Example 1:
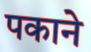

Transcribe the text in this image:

पकाने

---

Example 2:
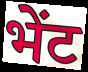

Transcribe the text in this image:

भेंट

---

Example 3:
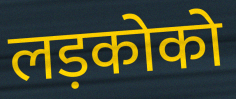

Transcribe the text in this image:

लड़कोको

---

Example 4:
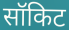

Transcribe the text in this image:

सॉकिट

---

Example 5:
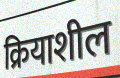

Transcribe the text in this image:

क्रियाशील